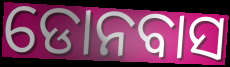
ଡୋନବାସ